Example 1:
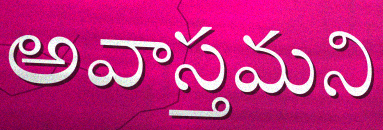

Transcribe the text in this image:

అవాస్తమని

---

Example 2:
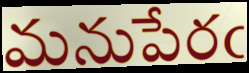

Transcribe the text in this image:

మనుపేరఁ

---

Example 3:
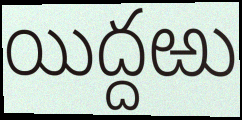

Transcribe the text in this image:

యిద్దఱు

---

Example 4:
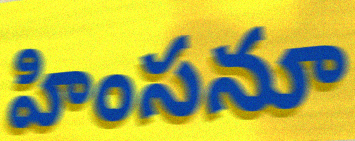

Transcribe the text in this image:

హింసనూ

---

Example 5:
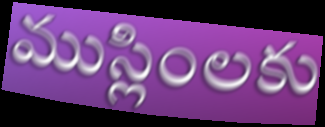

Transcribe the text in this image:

ముస్లింలకు